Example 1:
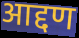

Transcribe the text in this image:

आद्दण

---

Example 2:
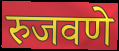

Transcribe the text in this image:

रुजवणे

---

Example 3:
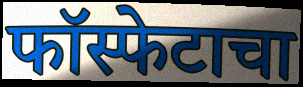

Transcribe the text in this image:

फॉस्फेटाचा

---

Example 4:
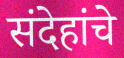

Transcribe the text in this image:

संदेहांचे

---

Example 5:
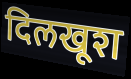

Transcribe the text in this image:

दिलखूश